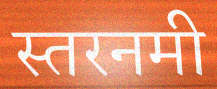
स्तरनमी